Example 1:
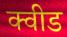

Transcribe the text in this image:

क्वीड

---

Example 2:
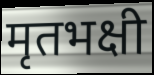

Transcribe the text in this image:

मृतभक्षी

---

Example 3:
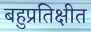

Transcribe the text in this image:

बहुप्रतिक्षीत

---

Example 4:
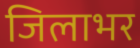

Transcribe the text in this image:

जिलाभर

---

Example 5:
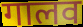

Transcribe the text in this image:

गालव